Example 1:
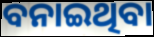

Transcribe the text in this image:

ବନାଇଥିବା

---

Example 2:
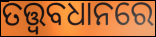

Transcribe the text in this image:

ତତ୍ତ୍ୱବଧାନରେ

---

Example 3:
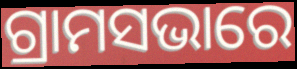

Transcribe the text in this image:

ଗ୍ରାମସଭାରେ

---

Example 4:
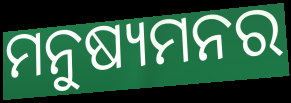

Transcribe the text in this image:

ମନୁଷ୍ୟମନର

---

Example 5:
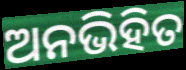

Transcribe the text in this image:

ଅନଭିହିତ